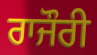
ਰਾਜੌਰੀ